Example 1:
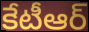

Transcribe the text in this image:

కేటీఆర్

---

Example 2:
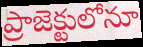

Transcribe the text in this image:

ప్రాజెక్టులోనూ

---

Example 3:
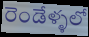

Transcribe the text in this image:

రెండేళ్ళలో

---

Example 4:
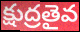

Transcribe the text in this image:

క్షుద్రతైవ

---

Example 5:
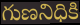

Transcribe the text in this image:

గుణనిధికి